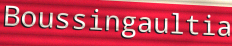
Boussingaultia